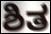
ಶಿತ